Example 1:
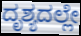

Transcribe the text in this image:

ದೃಶ್ಯದಲ್ಲೇ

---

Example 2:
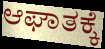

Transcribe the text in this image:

ಆಘಾತಕ್ಕೆ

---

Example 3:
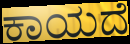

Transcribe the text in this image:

ಕಾಯದೆ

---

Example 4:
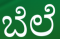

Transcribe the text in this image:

ಬೆಲೆ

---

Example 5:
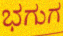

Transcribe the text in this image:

ಭಗುಗ